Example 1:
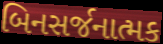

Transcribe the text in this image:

બિનસર્જનાત્મક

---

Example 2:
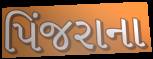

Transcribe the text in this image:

પિંજરાના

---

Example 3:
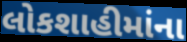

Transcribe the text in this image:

લોકશાહીમાંના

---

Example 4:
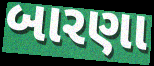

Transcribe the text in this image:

બારણા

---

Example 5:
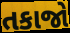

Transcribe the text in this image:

તકાજો